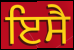
ਇਸੈ